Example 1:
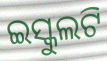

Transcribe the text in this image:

ଇସ୍କୁଲଟି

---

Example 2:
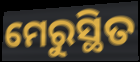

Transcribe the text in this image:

ମେରୁସ୍ଥିତ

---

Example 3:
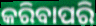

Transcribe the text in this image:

କରିବାପରି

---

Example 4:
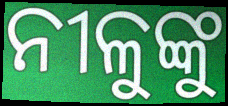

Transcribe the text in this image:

ନୀଳୁଙ୍କୁ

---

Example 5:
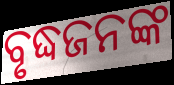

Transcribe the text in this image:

ବୃଦ୍ଧଜନଙ୍କ